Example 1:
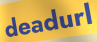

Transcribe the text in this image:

deadurl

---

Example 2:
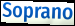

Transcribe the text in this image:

Soprano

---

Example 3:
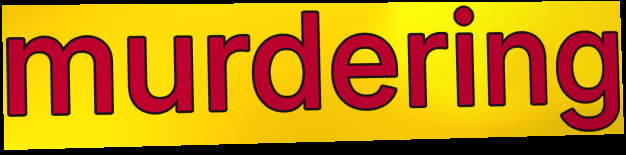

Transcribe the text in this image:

murdering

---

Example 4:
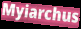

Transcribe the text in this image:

Myiarchus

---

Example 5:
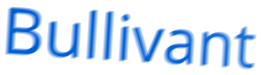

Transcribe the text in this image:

Bullivant